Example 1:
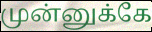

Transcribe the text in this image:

முன்னுக்கே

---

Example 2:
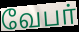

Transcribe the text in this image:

வேபர்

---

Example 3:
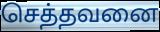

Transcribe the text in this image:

செத்தவனை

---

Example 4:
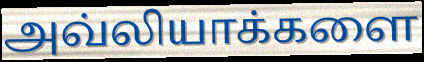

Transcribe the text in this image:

அவ்லியாக்களை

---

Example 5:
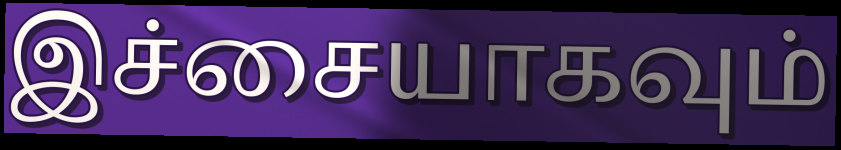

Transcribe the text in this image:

இச்சையாகவும்